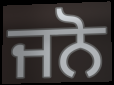
ਜਨੋ